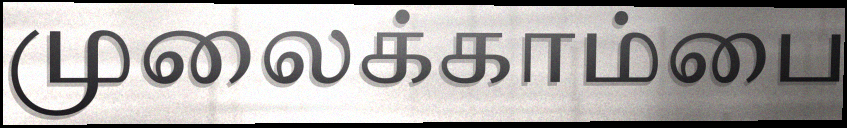
முலைக்காம்பை